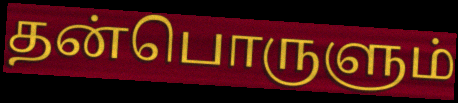
தன்பொருளும்